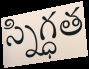
స్నిగ్ధత